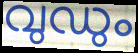
വുഡും